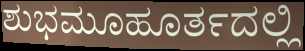
ಶುಭಮೂಹೂರ್ತದಲ್ಲಿ